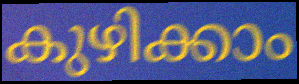
കുഴിക്കാം